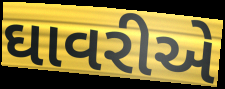
ઘાવરીએ